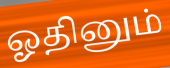
ஓதினும்